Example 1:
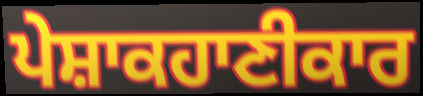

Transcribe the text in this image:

ਪੇਸ਼ਾਕਹਾਣੀਕਾਰ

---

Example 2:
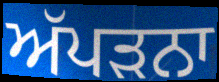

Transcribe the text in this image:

ਅੱਪੜਨਾ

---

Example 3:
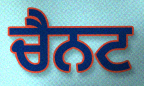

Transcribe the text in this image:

ਚੈਨਟ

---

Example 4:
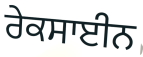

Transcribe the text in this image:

ਰੇਕਸਾਈਨ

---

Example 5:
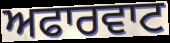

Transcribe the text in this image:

ਅਫਾਰਵਾਟ